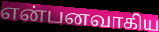
என்பனவாகிய